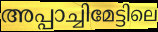
അപ്പാച്ചിമേട്ടിലെ